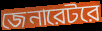
জেনারেটরে